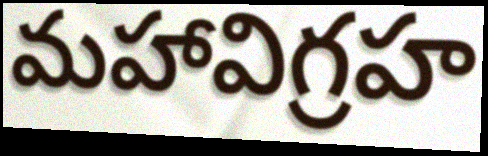
మహావిగ్రహ